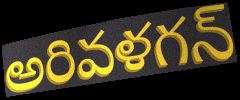
అరివళగన్